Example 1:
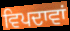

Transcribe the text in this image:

ਵਿਪਦਾਵਾਂ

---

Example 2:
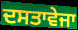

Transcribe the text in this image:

ਦਸਤਾਵੇਜਾ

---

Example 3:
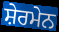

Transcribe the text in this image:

ਸ਼ੇਰਮੇਨ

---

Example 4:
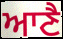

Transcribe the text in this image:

ਆਣੈ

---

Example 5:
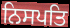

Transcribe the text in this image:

ਨਿਸਪਤਿ